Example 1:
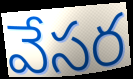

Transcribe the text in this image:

వేసర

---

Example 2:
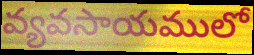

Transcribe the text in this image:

వ్యవసాయములో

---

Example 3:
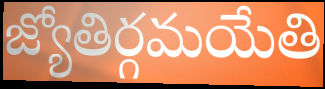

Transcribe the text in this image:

జ్యోతిర్గమయేతి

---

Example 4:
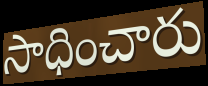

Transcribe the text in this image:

సాధించారు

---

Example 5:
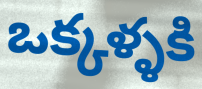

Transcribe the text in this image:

ఒక్కళ్ళకి